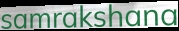
samrakshana